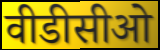
वीडीसीओ